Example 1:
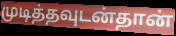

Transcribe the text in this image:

முடித்தவுடன்தான்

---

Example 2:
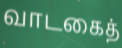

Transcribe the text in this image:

வாடகைத்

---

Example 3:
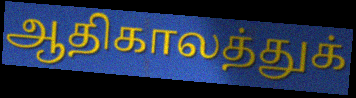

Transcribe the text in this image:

ஆதிகாலத்துக்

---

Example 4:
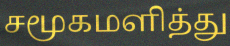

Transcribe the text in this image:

சமூகமளித்து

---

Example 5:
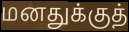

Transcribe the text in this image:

மனதுக்குத்